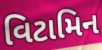
વિટામિન